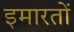
इमारतों